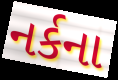
નર્કના